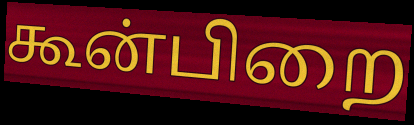
கூன்பிறை